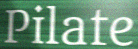
Pilate